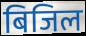
बिजिल